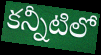
కన్నీటిలో